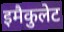
इमैकुलेट